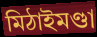
মিঠাইমণ্ডা